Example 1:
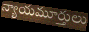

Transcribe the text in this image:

న్యాయమూర్తులు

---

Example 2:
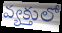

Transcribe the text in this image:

వ్యక్తులో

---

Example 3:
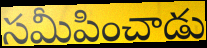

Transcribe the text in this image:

సమీపించాడు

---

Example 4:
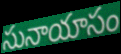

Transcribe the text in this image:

సునాయాసం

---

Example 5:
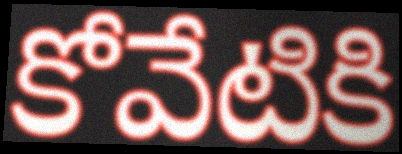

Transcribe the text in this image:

కోవేటికి